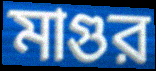
মাগুর